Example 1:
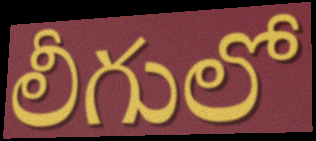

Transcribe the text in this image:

లీగులో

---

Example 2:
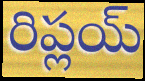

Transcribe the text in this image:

రిప్లయ్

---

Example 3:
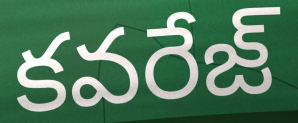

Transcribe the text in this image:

కవరేజ్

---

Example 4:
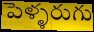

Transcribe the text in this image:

పెళ్ళరుగు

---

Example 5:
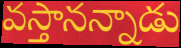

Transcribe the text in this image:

వస్తానన్నాడు